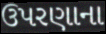
ઉપરણાના